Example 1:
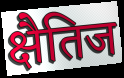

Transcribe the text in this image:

क्षैतिज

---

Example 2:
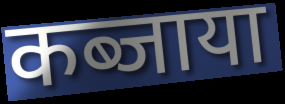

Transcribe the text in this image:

कब्जाया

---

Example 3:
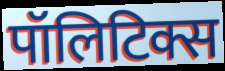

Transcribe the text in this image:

पॉलिटिक्स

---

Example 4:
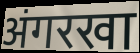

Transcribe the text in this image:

अंगरखा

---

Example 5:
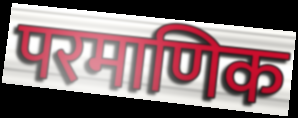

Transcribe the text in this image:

परमाणिक